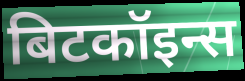
बिटकॉइन्स